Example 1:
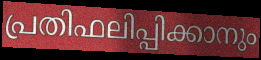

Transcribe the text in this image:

പ്രതിഫലിപ്പിക്കാനും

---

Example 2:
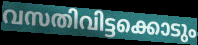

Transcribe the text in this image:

വസതിവിട്ടക്കൊടും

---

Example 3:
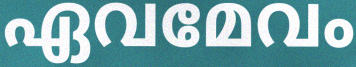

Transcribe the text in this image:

ഏവമേവം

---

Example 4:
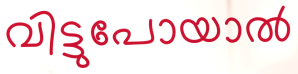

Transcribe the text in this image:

വിട്ടുപോയാൽ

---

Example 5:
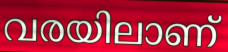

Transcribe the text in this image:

വരയിലാണ്